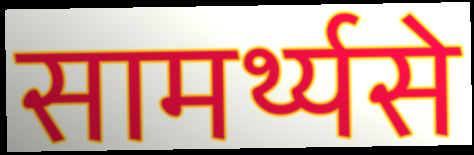
सामर्थ्यसे